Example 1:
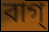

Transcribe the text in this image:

বাগ্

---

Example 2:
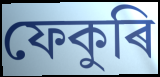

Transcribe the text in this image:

ফেকুৰি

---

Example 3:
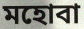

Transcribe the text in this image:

মহোবা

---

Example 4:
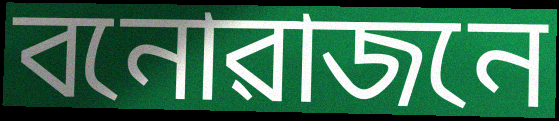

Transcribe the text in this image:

বনোৱাজনে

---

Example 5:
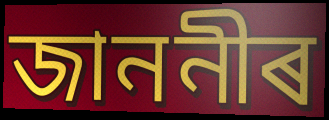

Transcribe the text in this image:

জাননীৰ